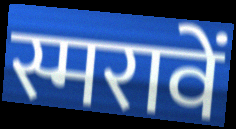
स्मरावें